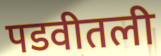
पडवीतली